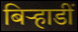
बिर्‍हाडीं